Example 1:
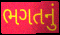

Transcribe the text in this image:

ભગતનું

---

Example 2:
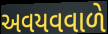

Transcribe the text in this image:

અવયવવાળે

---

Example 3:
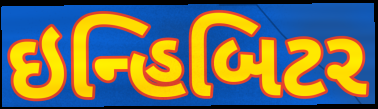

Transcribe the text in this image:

ઇન્હિબિટર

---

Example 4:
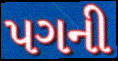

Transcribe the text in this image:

પગની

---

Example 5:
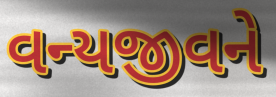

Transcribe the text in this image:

વન્યજીવને